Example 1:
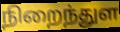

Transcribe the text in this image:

நிறைந்துள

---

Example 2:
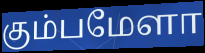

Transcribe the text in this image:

கும்பமேளா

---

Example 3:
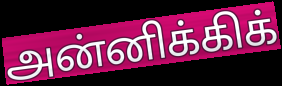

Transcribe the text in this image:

அன்னிக்கிக்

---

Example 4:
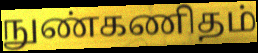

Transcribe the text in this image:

நுண்கணிதம்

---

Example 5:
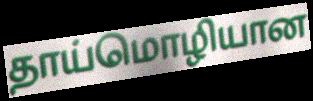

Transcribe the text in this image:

தாய்மொழியான